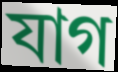
যাগ